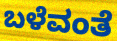
ಬಳೆವಂತೆ